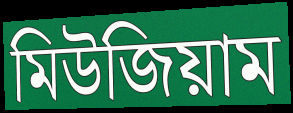
মিউজিয়াম